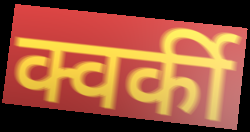
क्वर्की